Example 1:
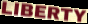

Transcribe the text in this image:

LIBERTY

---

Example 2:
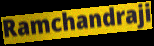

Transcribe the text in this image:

Ramchandraji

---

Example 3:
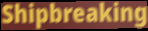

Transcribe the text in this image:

Shipbreaking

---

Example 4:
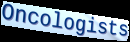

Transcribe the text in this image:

Oncologists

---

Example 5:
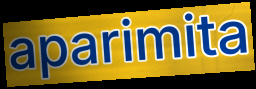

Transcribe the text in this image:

aparimita